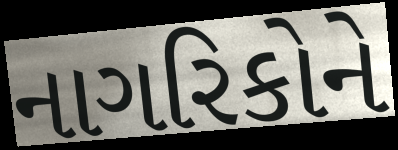
નાગરિકોને